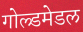
गोल्डमेडल